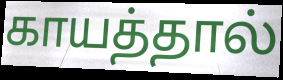
காயத்தால்